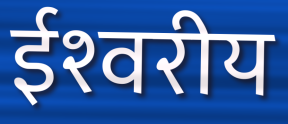
ईश्वरीय